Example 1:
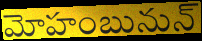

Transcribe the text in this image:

మోహంబునున్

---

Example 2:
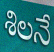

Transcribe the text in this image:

శిలనే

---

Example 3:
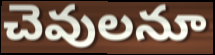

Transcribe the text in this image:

చెవులనూ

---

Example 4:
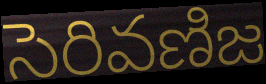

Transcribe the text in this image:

సెరివణిజ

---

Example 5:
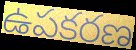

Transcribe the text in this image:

ఉపకరణ